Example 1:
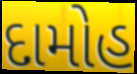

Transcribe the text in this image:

દામોહ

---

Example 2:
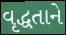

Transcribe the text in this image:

વૃદ્ધતાને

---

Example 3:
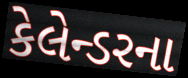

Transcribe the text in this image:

કેલેન્ડરના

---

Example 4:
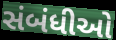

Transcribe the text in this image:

સંબંધીઓ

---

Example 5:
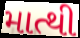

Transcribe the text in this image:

માત્થી